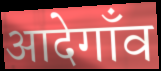
आदेगाँव